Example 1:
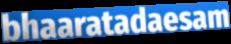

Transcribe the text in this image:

bhaaratadaesam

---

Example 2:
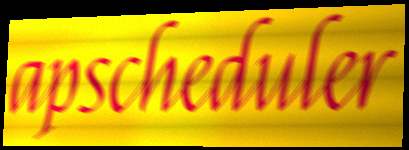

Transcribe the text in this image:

apscheduler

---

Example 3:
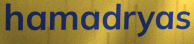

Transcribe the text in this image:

hamadryas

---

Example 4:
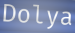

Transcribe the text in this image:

Dolya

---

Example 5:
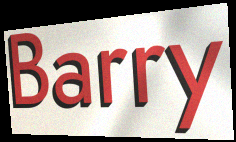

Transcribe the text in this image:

Barry